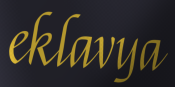
eklavya